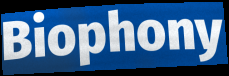
Biophony